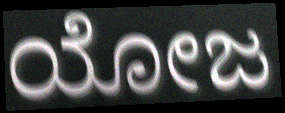
ಯೋಜ